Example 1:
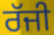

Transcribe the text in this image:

ਰੱਜੀ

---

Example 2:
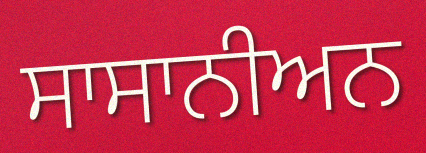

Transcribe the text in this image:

ਸਾਸਾਨੀਅਨ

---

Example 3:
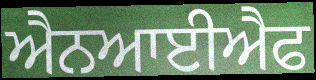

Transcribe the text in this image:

ਐਨਆਈਐਫ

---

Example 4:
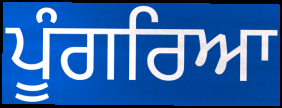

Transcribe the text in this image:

ਪੂੰਗਰਿਆ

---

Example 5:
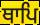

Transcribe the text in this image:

ਥਾਪਿ